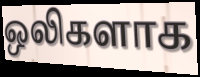
ஒலிகளாக